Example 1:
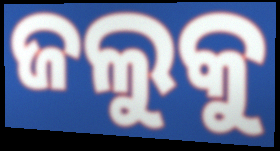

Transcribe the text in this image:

ଜଲୁକୁ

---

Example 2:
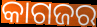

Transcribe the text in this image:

କାଗଜର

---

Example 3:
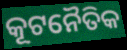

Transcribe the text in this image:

କୂଟନୈତିକ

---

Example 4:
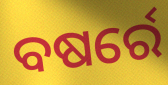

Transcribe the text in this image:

ବଷର୍ରେ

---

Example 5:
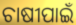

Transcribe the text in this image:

ଚାଷୀପାଇଁ